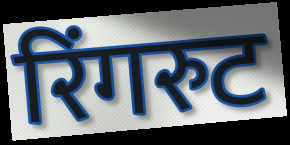
रिंगरुट